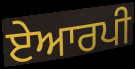
ਏਆਰਪੀ